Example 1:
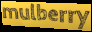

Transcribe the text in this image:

mulberry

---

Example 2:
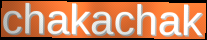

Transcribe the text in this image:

chakachak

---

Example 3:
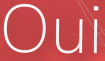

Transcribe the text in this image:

Oui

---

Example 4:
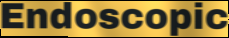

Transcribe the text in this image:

Endoscopic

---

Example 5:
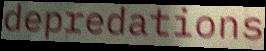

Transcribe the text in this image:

depredations